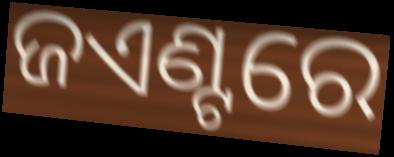
ଜଏଣ୍ଟରେ